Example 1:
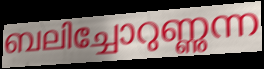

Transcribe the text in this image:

ബലിച്ചോറുണ്ണുന്ന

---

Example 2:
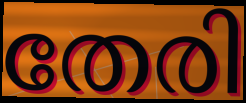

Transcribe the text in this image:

തേരി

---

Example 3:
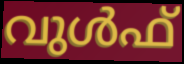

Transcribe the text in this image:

വുൾഫ്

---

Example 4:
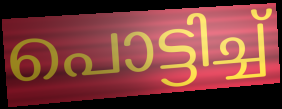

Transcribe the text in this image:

പൊട്ടിച്ച്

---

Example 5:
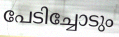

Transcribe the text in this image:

പേടിച്ചോടും